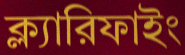
ক্ল্যারিফাইং